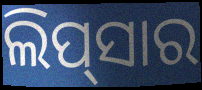
ଲିପ୍‌ସାର